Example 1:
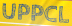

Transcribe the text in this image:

UPPCL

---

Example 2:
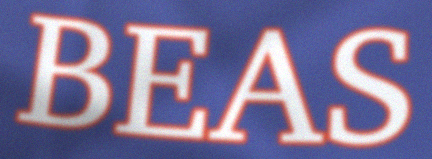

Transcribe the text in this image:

BEAS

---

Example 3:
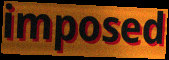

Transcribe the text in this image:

imposed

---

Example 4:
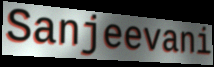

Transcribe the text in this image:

Sanjeevani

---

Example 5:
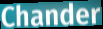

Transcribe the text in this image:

Chander